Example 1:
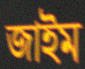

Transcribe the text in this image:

জাইম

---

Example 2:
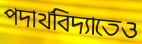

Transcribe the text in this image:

পদার্থবিদ্যাতেও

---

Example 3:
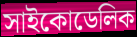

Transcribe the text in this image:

সাইকোডেলিক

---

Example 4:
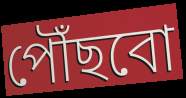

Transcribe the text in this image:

পৌঁছবো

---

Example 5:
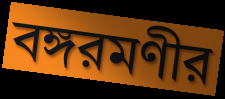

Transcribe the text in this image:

বঙ্গরমণীর